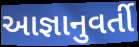
આજ્ઞાનુવર્તી